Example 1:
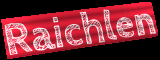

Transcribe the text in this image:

Raichlen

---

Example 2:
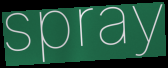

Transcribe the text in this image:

spray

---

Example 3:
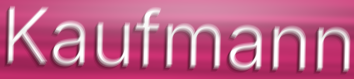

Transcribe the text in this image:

Kaufmann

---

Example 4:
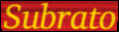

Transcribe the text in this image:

Subrato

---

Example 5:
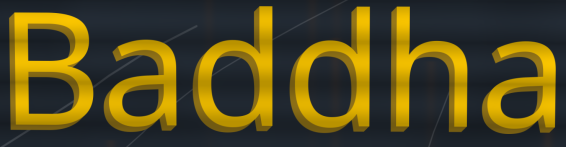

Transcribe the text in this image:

Baddha